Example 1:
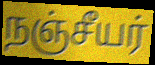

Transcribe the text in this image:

நஞ்சீயர்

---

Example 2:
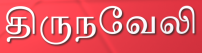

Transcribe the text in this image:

திருநவேலி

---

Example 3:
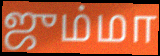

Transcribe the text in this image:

ஜும்மா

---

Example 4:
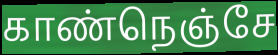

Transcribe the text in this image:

காண்நெஞ்சே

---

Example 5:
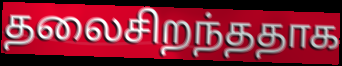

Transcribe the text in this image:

தலைசிறந்ததாக